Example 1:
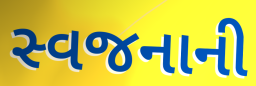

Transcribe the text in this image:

સ્વજનાની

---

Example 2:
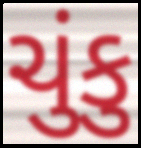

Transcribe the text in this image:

ચુંકુ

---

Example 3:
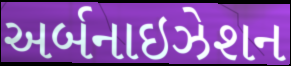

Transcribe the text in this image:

અર્બનાઇઝેશન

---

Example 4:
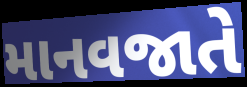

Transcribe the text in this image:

માનવજાતે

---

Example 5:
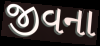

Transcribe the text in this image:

જીવના